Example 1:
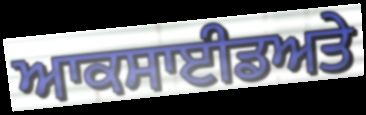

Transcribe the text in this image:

ਆਕਸਾਈਡਅਤੇ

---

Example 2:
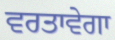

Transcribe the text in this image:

ਵਰਤਾਵੇਗਾ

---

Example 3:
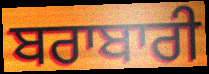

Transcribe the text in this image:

ਬਰਾਬਾਰੀ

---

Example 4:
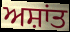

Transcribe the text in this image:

ਅਸ਼ਾਂਤ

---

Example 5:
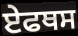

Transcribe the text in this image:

ਏਫਥਸ